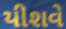
યીશવે